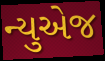
ન્યુએજ